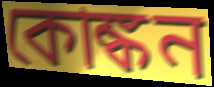
কোঙ্কন